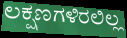
ಲಕ್ಷಣಗಳಿರಲಿಲ್ಲ